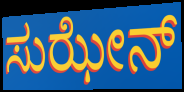
ಸುಝೇನ್